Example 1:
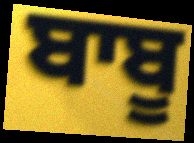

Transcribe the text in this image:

ਬਾਬੂ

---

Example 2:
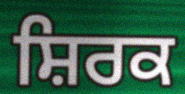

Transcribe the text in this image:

ਸ਼ਿਰਕ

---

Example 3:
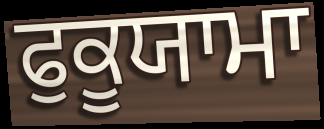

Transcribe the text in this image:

ਫੁਕੂਯਾਮਾ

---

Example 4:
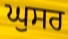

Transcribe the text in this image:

ਘੁਸਰ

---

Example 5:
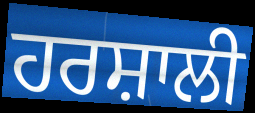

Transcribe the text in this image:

ਹਰਸ਼ਾਲੀ